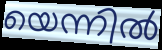
യെന്നിൽ